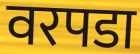
वरपडा